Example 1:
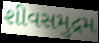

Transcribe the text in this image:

શીવસમુદ્રમ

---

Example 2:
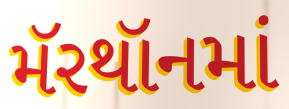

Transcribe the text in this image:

મૅરથૉનમાં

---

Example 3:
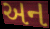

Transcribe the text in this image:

અન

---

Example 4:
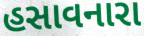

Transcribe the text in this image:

હસાવનારા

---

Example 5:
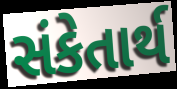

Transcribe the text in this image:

સંકેતાર્થ